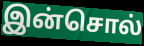
இன்சொல்